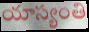
యాస్యంతి